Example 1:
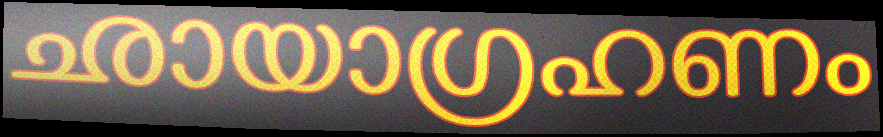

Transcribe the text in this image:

ഛായാഗ്രഹണം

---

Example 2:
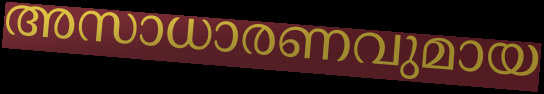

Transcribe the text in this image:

അസാധാരണവുമായ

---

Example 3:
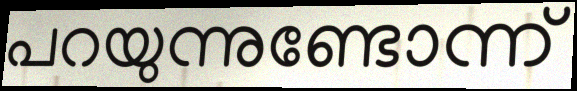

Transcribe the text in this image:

പറയുന്നുണ്ടോന്ന്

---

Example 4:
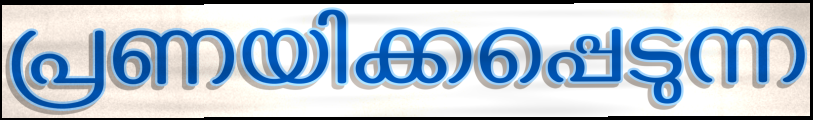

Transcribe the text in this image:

പ്രണയിക്കപ്പെടുന്ന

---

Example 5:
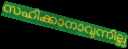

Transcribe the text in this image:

സഹിക്കാനാവുന്നില്ല